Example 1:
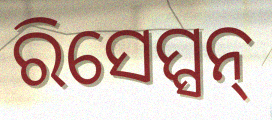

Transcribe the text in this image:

ରିସେପ୍ସନ୍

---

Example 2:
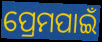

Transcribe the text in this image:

ପ୍ରେମପାଇଁ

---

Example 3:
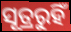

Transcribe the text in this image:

ସୂତ୍ରରୁହିଁ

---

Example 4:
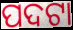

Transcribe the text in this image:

ପଦଟା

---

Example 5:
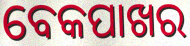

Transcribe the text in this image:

ବେକପାଖର